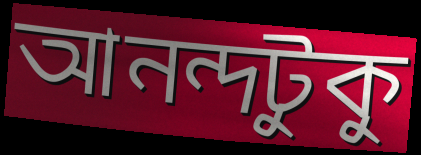
আনন্দটুকু